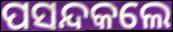
ପସନ୍ଦକଲେ